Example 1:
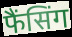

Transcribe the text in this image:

फैंसिंग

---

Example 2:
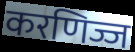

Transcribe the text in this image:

करणिज्ज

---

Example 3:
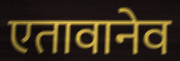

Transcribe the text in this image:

एतावानेव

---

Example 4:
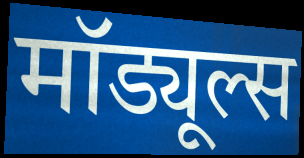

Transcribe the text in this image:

मॉड्यूल्स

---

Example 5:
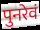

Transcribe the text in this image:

पुनरेवं